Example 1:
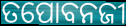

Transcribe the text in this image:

ତପୋବନଜୀ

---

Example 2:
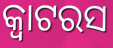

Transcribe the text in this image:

କ୍ୱାଟରସ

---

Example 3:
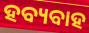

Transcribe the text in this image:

ହବ୍ୟବାହ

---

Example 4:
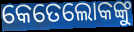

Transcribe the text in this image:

କେତେଲୋକଙ୍କୁ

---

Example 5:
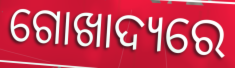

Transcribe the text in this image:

ଗୋଖାଦ୍ୟରେ